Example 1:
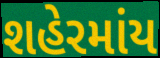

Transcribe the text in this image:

શહેરમાંય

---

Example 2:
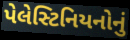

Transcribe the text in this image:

પેલેસ્ટિનિયનોનું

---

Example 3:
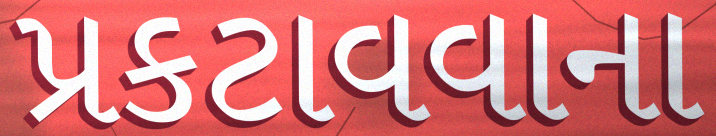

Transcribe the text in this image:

પ્રકટાવવાના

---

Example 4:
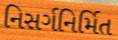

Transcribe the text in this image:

નિસર્ગનિર્મિત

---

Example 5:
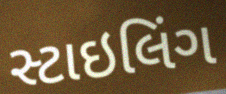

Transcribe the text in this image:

સ્ટાઇલિંગ